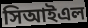
সিআইএল